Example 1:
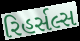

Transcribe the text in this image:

રિહર્સલ્સ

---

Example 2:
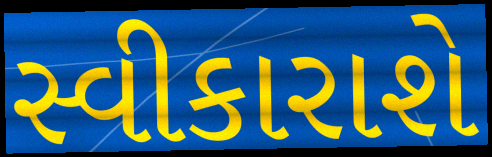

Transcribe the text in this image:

સ્વીકારાશે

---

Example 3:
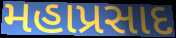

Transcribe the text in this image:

મહાપ્રસાદ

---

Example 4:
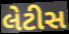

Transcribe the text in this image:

લેટીસ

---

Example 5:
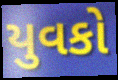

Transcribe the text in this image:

યુવકો